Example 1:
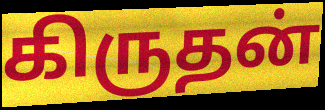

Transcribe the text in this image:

கிருதன்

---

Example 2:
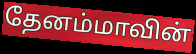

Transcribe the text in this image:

தேனம்மாவின்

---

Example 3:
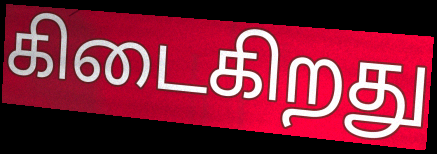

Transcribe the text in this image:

கிடைகிறது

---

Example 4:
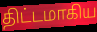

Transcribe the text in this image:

திட்டமாகிய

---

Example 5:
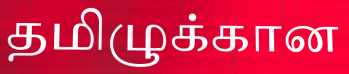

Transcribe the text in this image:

தமிழுக்கான